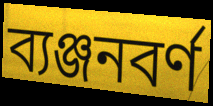
ব্যঞ্জনবর্ণ